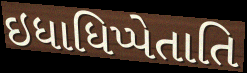
ઇધાધિપ્પેતાતિ